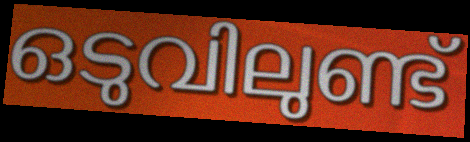
ഒടുവിലുണ്ട്